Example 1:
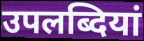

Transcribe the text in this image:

उपलब्दियां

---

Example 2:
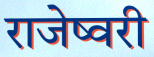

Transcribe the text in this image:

राजेष्वरी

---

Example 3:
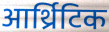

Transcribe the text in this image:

आर्थ्रिटिक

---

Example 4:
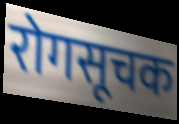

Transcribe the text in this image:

रोगसूचक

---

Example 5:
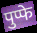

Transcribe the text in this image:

पुप्फे